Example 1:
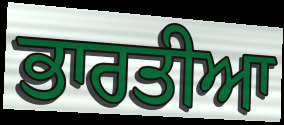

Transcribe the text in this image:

ਭਾਰਤੀਆ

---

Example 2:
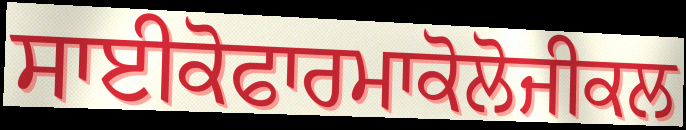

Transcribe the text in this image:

ਸਾਈਕੋਫਾਰਮਾਕੋਲੋਜੀਕਲ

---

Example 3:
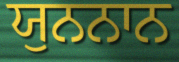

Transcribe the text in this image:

ਯੁਨਨਾਨ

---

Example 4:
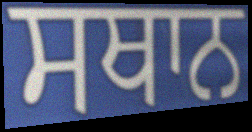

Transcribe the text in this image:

ਸਥਾਨ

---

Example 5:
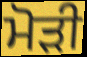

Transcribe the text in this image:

ਮੋੜੀ